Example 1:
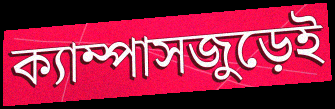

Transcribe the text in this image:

ক্যাম্পাসজুড়েই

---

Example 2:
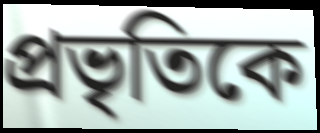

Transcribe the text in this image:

প্রভৃতিকে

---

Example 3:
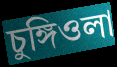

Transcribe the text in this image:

চুঙ্গিওলা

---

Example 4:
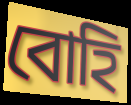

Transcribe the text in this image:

বোহি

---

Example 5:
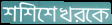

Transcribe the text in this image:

শশিশেখরকে